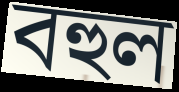
বহুল